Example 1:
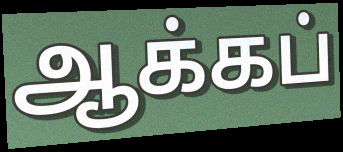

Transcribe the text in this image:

ஆக்கப்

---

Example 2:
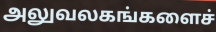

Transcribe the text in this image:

அலுவலகங்களைச்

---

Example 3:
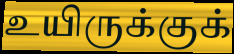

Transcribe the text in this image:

உயிருக்குக்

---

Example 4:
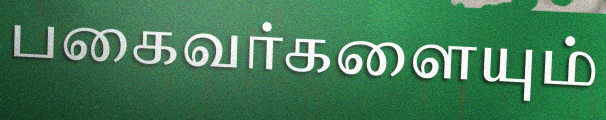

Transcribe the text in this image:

பகைவர்களையும்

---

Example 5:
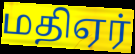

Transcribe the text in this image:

மதிஏர்